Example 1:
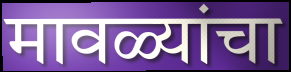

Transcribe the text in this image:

मावळ्यांचा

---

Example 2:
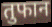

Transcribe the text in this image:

तुफान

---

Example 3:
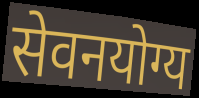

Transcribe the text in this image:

सेवनयोग्य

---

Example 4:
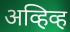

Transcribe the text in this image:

अव्हिव्ह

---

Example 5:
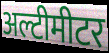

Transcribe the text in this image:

अल्टीमीटर